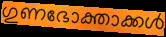
ഗുണഭോക്താക്കൾ